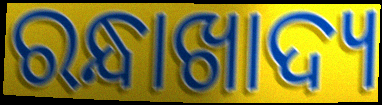
ରନ୍ଧାଖାଦ୍ୟ